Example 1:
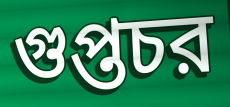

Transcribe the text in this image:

গুপ্তচর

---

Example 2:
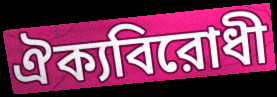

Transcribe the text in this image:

ঐক্যবিরোধী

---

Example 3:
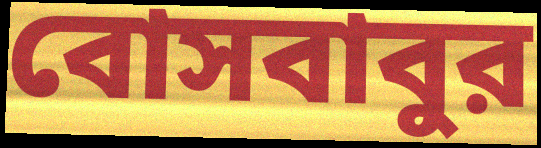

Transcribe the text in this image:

বোসবাবুর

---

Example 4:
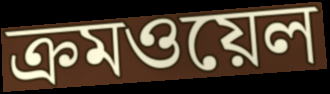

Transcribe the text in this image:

ক্রমওয়েল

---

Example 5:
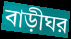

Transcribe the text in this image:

বাড়ীঘর